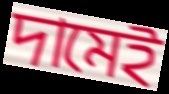
দামেই